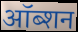
ऑब्शन